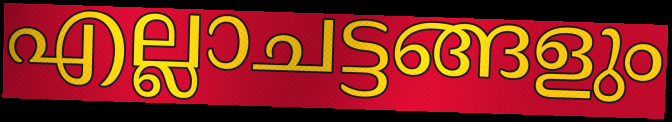
എല്ലാചട്ടങ്ങളും